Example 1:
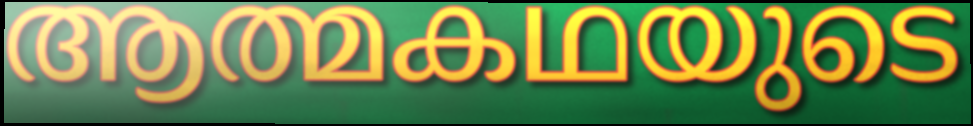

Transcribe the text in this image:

ആത്മകഥയുടെ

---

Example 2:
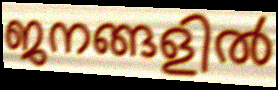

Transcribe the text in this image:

ജനങ്ങളിൽ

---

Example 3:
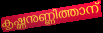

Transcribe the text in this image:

കൃഷ്ണനുണ്ണിത്താന്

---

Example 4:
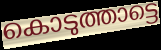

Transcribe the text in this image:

കൊടുത്താട്ടെ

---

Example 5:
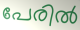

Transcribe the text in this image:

പേരിൽ